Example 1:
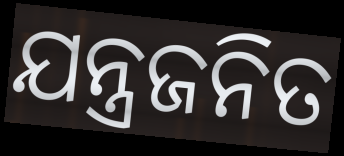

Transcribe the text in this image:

ଯନ୍ତ୍ରଜନିତ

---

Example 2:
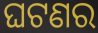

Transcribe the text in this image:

ଘଟଣର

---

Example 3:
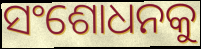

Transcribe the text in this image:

ସଂଶୋଧନକୁ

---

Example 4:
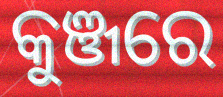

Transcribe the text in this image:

କୁଞ୍ଜରେ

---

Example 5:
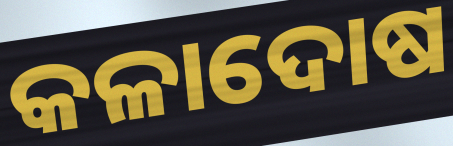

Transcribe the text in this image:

କଳାଦୋଷ